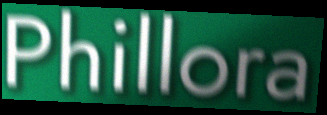
Phillora